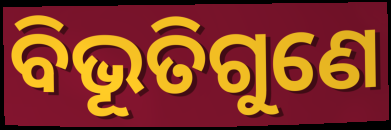
ବିଭୂତିଗୁଣେ